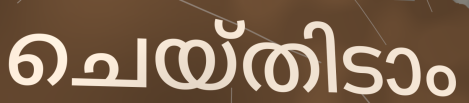
ചെയ്തിടാം